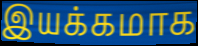
இயக்கமாக